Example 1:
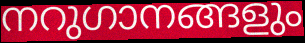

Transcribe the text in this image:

നറുഗാനങ്ങളും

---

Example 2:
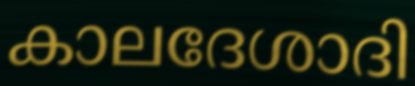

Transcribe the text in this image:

കാലദേശാദി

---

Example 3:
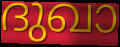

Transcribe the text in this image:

ദുഖാ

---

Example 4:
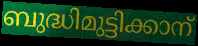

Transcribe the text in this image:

ബുദ്ധിമുട്ടിക്കാന്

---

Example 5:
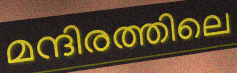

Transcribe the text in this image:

മന്ദിരത്തിലെ